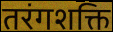
तरंगशक्ति